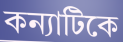
কন্যাটিকে